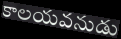
కాలయవనుడు